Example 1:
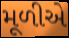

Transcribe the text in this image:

મૂળીએ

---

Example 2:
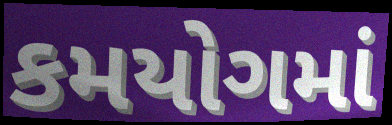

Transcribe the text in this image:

કમયોગમાં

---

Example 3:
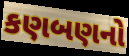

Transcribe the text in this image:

કણબણનો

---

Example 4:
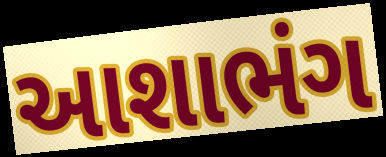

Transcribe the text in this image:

આશાભંગ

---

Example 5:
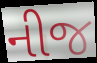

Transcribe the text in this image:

નીજ